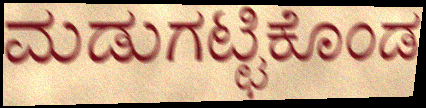
ಮಡುಗಟ್ಟಿಕೊಂಡ